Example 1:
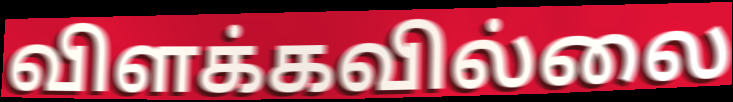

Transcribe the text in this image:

விளக்கவில்லை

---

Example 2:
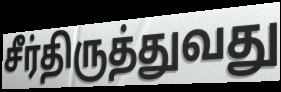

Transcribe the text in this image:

சீர்திருத்துவது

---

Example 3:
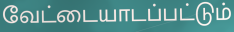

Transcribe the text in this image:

வேட்டையாடப்பட்டும்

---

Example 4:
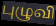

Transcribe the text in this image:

புழுவி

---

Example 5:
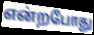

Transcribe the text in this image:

என்றபோது